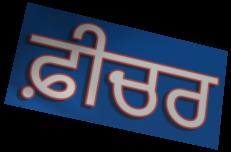
ਫ਼ੀਚਰ